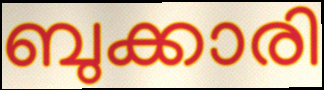
ബുക്കാരി